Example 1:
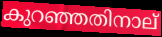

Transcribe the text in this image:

കുറഞ്ഞതിനാല്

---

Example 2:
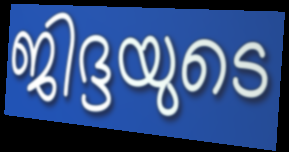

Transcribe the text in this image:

ജിദ്ദയുടെ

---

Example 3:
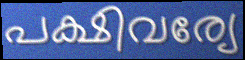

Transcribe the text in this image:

പക്ഷിവര്യേ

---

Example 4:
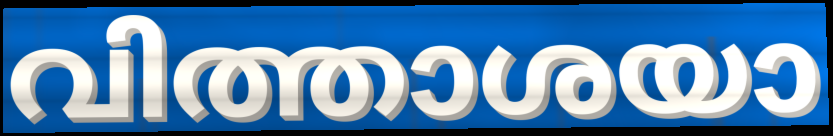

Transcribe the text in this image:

വിത്താശയാ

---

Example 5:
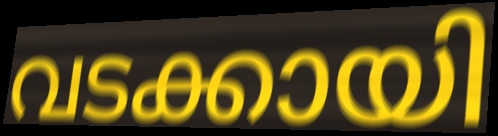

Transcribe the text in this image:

വടക്കായി